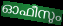
ഓഫീസും